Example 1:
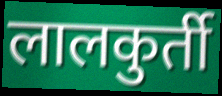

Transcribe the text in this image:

लालकुर्ती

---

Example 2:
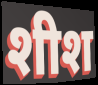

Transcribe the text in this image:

शीश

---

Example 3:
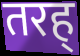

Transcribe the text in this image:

तरह्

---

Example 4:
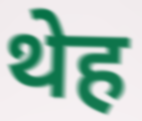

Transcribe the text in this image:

थेह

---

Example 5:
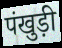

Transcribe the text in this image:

पंखुड़ी